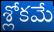
శ్లోకమే